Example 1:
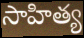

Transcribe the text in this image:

సాహిత్య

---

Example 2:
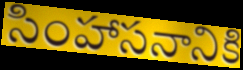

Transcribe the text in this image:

సింహాసనానికి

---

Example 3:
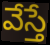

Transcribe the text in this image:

వేస్తే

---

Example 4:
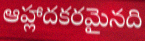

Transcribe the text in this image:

ఆహ్లాదకరమైనది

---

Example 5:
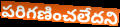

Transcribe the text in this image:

పరిగణించలేదని